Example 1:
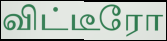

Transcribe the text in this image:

விட்டீரோ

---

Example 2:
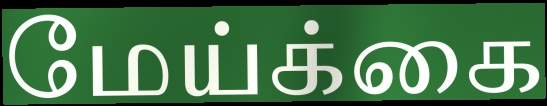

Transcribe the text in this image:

மேய்க்கை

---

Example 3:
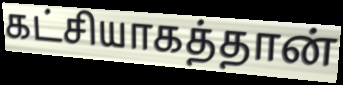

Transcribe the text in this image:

கட்சியாகத்தான்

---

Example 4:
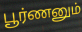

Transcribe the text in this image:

பூர்ணனும்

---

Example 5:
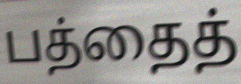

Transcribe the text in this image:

பத்தைத்